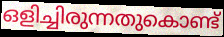
ഒളിച്ചിരുന്നതുകൊണ്ട്